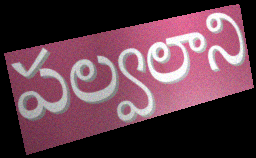
పల్వలాని